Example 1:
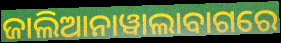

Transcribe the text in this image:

ଜାଲିଆନାୱାଲାବାଗରେ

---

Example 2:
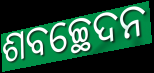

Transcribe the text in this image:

ଶବଚ୍ଛେଦନ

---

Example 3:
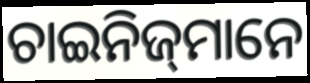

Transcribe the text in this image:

ଚାଇନିଜ୍‍ମାନେ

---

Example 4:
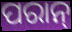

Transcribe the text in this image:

ପରାନ୍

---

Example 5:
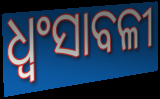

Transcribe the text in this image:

ଧ୍ୱଂସାବଳୀ